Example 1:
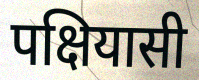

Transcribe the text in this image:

पक्षियासी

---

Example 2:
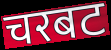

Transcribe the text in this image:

चरबट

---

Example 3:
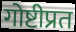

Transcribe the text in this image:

गोष्टीप्रत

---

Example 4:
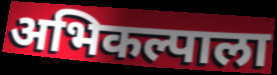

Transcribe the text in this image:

अभिकल्पाला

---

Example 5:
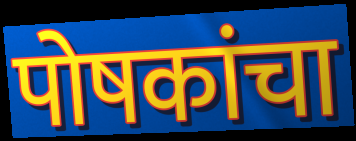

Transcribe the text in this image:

पोषकांचा